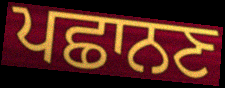
ਪਛਾਨਣ